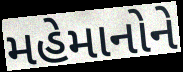
મહેમાનોને